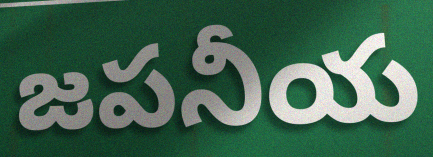
జపనీయ